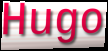
Hugo